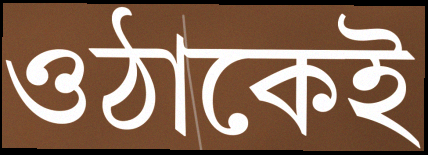
ওঠাকেই